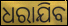
ଧରାଯିବ